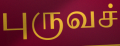
புருவச்